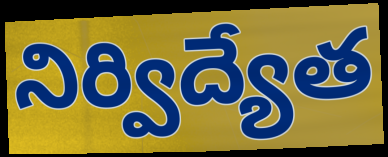
నిర్విద్యేత